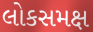
લોકસમક્ષ